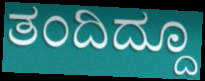
ತಂದಿದ್ದೂ